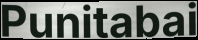
Punitabai